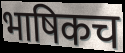
भाषिकच